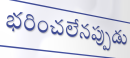
భరించలేనప్పుడు